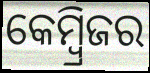
କେମ୍ବ୍ରିଜର